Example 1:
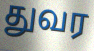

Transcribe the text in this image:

துவர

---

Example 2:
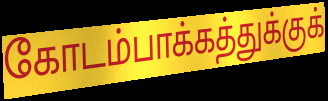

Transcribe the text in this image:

கோடம்பாக்கத்துக்குக்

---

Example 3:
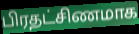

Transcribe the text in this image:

பிரதட்சிணமாக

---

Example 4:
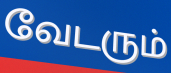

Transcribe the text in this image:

வேடரும்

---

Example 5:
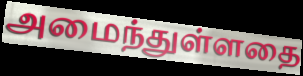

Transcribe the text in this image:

அமைந்துள்ளதை